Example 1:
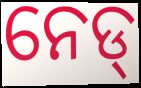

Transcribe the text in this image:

ନେଡ୍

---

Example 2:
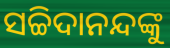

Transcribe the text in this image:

ସଚ୍ଚିଦାନନ୍ଦଙ୍କୁ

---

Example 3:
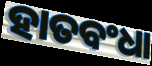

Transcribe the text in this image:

ହାତବଂଧା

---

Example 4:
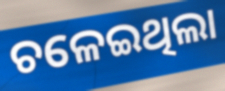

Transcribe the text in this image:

ଚଳେଇଥିଲା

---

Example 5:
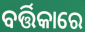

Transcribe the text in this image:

ବର୍ତ୍ତିକାରେ